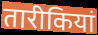
तारीकियां